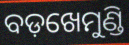
ବଡ଼ଖେମୁଣ୍ଡି